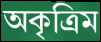
অকৃত্রিম